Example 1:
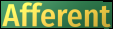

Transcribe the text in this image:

Afferent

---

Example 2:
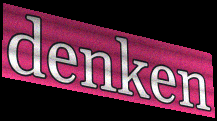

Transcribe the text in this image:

denken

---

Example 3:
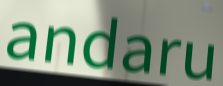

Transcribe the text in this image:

andaru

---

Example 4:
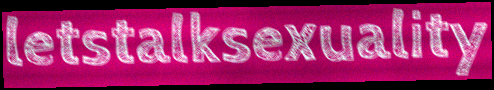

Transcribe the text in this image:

letstalksexuality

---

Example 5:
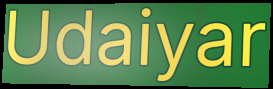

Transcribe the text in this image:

Udaiyar